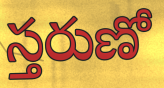
స్తరుణో